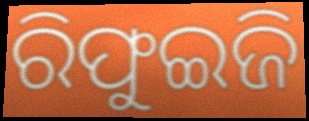
ରିଫୁଇଜି